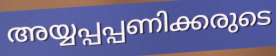
അയ്യപ്പപ്പണിക്കരുടെ